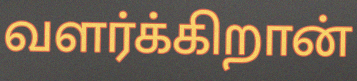
வளர்க்கிறான்